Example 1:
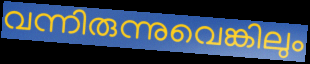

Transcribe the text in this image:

വന്നിരുന്നുവെങ്കിലും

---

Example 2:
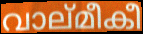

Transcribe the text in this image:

വാല്മീകീ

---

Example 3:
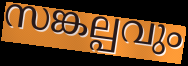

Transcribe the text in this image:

സങ്കല്പവും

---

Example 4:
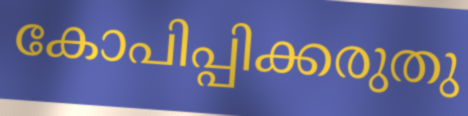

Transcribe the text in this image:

കോപിപ്പിക്കരുതു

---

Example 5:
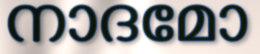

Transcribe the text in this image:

നാദമോ